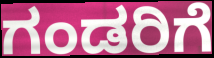
ಗಂಡರಿಗೆ